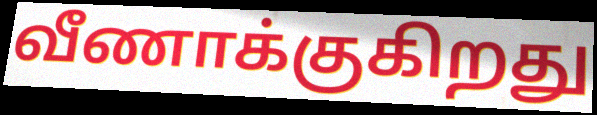
வீணாக்குகிறது